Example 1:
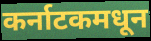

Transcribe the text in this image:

कर्नाटकमधून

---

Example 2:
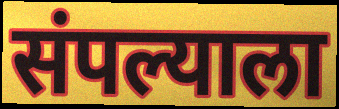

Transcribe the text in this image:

संपल्याला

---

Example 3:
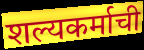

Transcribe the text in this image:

शल्यकर्माची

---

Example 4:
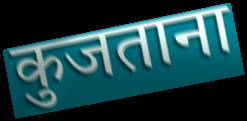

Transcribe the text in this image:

कुजताना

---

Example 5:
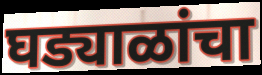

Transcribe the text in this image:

घड्याळांचा